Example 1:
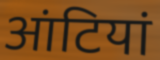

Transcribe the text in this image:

आंटियां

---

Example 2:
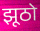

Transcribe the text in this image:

झूठो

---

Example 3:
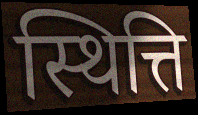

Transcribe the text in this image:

स्थित्ति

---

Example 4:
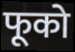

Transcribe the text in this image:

फूको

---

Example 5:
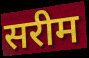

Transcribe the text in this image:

सरीम